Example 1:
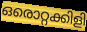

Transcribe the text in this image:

ഒരൊറ്റക്കിളി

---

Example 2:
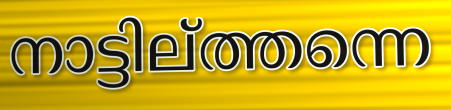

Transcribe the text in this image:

നാട്ടില്ത്തന്നെ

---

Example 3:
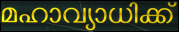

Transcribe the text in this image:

മഹാവ്യാധിക്ക്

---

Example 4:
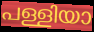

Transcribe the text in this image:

പള്ളിയാ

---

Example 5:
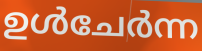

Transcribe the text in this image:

ഉൾചേർന്ന